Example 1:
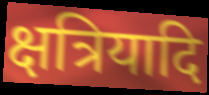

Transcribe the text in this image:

क्षत्रियादि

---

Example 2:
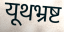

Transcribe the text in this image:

यूथभ्रष्ट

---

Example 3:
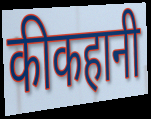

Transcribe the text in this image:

कीकहानी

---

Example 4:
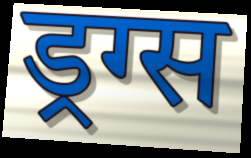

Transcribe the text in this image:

ड्रग्स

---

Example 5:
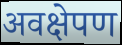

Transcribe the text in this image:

अवक्षेपण